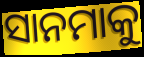
ସାନମାକୁ